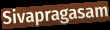
Sivapragasam